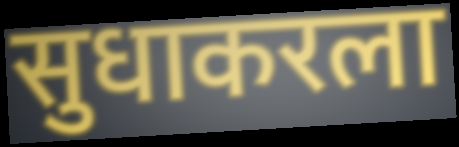
सुधाकरला